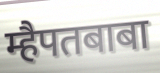
म्हैपतबाबा